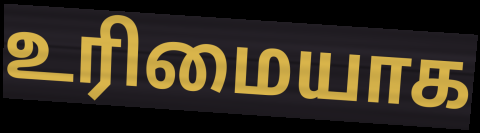
உரிமையாக